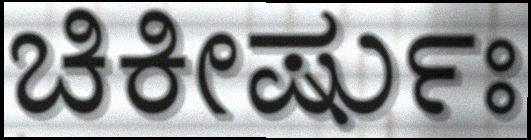
ಚಿಕೀರ್ಷುಃ